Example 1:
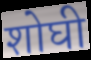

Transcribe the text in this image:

शोघी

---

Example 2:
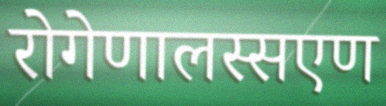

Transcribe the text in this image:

रोगेणालस्सएण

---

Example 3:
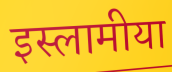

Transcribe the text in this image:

इस्लामीया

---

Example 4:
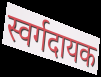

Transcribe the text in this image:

स्वर्गदायक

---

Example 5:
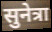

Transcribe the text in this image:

सुनेत्रा